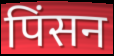
पिंसन